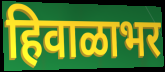
हिवाळाभर